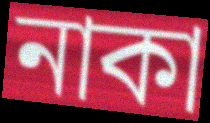
নাকা